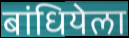
बांधियेला